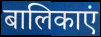
बालिकाएं